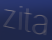
zita